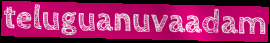
teluguanuvaadam